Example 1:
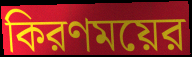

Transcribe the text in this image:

কিরণময়ের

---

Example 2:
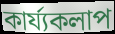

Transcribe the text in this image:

কার্য্যকলাপ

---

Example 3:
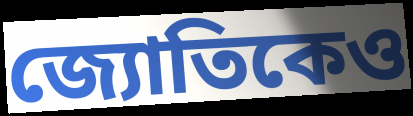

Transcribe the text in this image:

জ্যোতিকেও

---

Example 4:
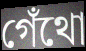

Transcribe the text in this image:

গেঁথো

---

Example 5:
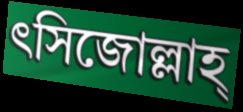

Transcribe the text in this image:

ৎসিজোল্লাহ্